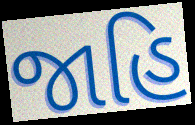
જાહિ